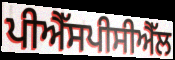
ਪੀਐੱਸਪੀਸੀਐੱਲ